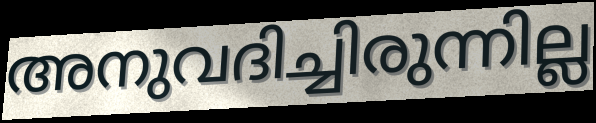
അനുവദിച്ചിരുന്നില്ല